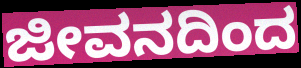
ಜೀವನದಿಂದ